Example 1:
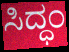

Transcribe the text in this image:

ಸಿದ್ಧಂ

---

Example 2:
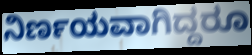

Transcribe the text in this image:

ನಿರ್ಣಯವಾಗಿದ್ದರೂ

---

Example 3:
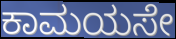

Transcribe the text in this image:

ಕಾಮಯಸೇ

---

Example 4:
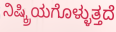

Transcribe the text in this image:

ನಿಷ್ಕ್ರಿಯಗೊಳ್ಳುತ್ತದೆ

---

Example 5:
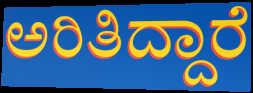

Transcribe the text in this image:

ಅರಿತಿದ್ದಾರೆ